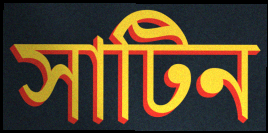
সাটিন